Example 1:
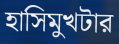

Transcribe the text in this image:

হাসিমুখটার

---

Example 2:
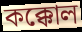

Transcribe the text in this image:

কক্কোল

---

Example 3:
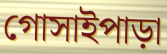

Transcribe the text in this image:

গোসাইপাড়া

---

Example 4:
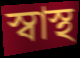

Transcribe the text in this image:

স্বাস্থ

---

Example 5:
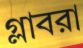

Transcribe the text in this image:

গ্লাবরা